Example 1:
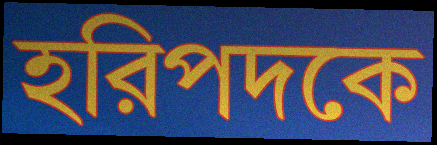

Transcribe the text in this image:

হরিপদকে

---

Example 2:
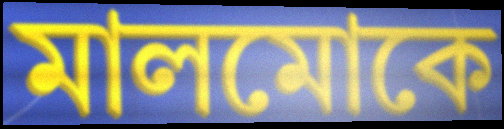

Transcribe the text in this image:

মালমোকে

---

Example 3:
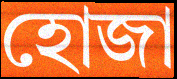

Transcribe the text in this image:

হোজা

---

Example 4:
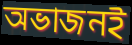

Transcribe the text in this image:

অভাজনই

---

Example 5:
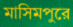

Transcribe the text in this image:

মাসিমপুরে